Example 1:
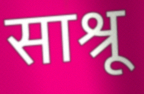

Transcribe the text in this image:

साश्रू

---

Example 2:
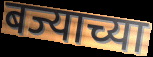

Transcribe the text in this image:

बज्याच्या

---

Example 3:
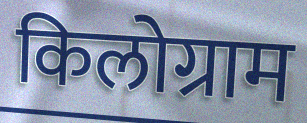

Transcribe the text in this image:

किलोग्राम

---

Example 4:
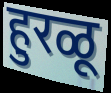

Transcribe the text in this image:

हुरळू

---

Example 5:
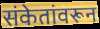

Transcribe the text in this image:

संकेतांवरून